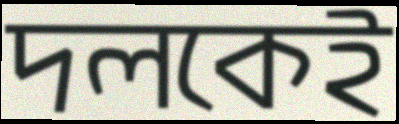
দলকেই